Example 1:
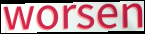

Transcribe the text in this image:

worsen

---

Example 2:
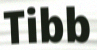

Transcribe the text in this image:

Tibb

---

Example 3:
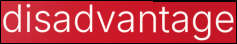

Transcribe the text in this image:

disadvantage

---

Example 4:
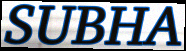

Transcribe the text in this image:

SUBHA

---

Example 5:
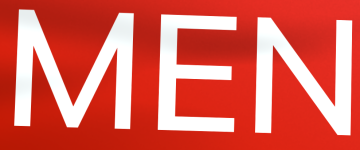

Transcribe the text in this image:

MEN